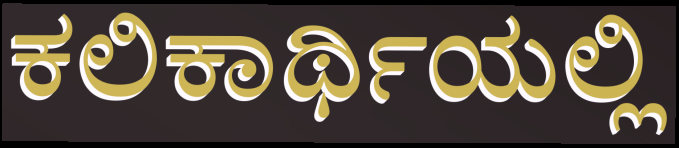
ಕಲಿಕಾರ್ಥಿಯಲ್ಲಿ